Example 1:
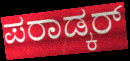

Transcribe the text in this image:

ಪರಾಡ್ಕರ್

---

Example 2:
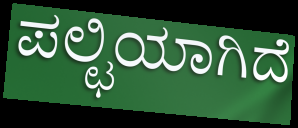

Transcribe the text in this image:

ಪಲ್ಟಿಯಾಗಿದೆ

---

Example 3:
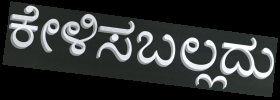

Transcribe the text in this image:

ಕೇಳಿಸಬಲ್ಲದು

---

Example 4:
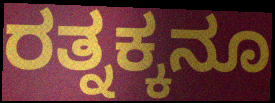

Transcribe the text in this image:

ರತ್ನಕ್ಕನೂ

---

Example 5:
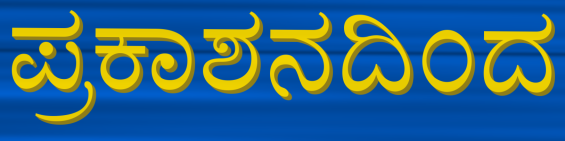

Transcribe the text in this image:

ಪ್ರಕಾಶನದಿಂದ